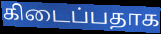
கிடைப்பதாக